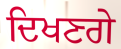
ਦਿਖਣਗੇ